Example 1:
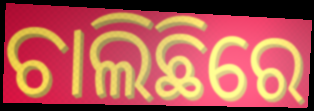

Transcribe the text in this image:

ଚାଲିଛିରେ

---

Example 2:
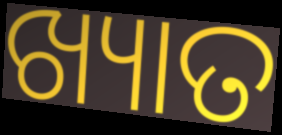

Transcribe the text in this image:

ଖ୍ୟାତ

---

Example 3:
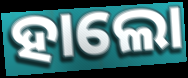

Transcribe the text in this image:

ହାଲୋ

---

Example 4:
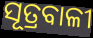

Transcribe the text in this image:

ସୂତ୍ରବାଳୀ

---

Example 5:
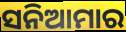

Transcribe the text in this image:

ସନିଆମାର